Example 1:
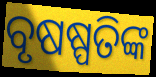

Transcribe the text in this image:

ବୃଷଷ୍ପତିଙ୍କ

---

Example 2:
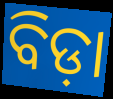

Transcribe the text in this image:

ବିଡ଼ା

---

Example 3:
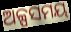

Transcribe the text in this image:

ଅଳ୍ପସମୟ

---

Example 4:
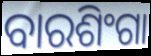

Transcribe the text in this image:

ବାରଶିଂଗା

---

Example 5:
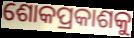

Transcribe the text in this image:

ଶୋକପ୍ରକାଶକୁ